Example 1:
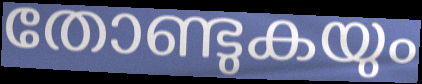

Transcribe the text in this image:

തോണ്ടുകയും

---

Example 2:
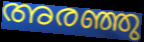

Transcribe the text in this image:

അരഞ്ഞു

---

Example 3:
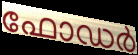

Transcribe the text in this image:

ഫോഡർ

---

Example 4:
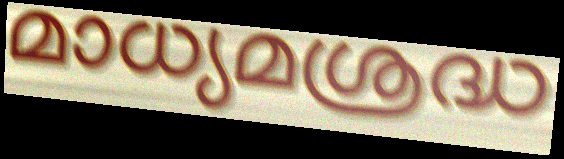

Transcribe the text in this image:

മാധ്യമശ്രദ്ധ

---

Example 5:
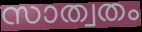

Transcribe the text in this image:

സാത്വതം